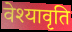
वेश्यावृति